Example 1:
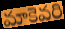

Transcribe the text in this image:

మాకెవరి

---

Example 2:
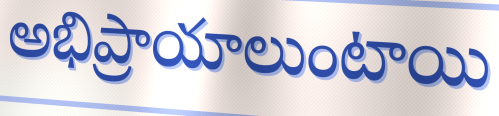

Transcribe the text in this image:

అభిప్రాయాలుంటాయి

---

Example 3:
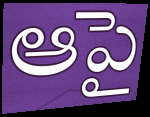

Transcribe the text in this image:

ఆపై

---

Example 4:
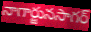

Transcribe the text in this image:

నాగార్జునసాగర్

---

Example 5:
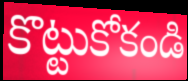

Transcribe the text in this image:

కొట్టుకోకండి